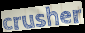
crusher